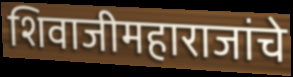
शिवाजीमहाराजांचे